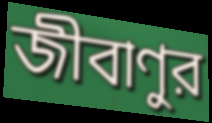
জীবাণুর